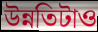
উন্নতিটাও